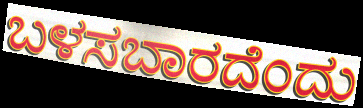
ಬಳಸಬಾರದೆಂದು